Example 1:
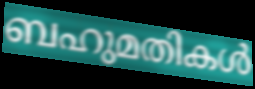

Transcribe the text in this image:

ബഹുമതികൾ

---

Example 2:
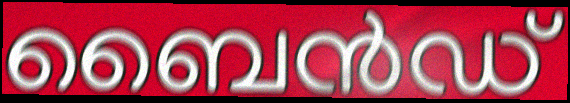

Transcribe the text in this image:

ബൈൻഡ്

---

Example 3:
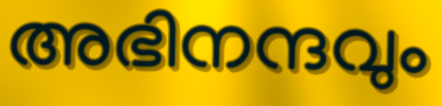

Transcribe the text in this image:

അഭിനന്ദവും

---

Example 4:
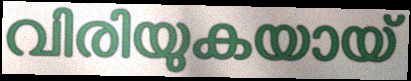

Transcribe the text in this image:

വിരിയുകയായ്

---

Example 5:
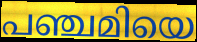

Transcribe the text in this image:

പഞ്ചമിയെ